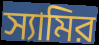
স্যামির